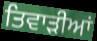
ਤਿਵਾੜੀਆਂ